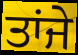
ਤਾਂਜੇ